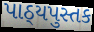
પાઠ્યપુસ્તક